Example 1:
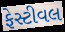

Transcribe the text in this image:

ફેસ્ટીવલ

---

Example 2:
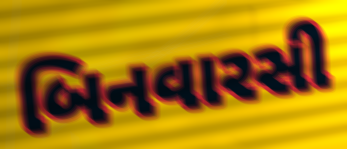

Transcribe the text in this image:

બિનવારસી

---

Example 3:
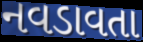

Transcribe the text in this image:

નવડાવતા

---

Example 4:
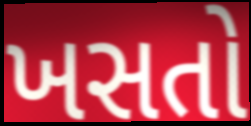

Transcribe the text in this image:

ખસતો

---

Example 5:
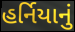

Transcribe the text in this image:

હર્નિયાનું